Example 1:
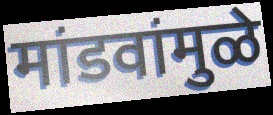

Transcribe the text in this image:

मांडवांमुळे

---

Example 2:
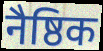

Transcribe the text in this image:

नैष्ठिक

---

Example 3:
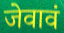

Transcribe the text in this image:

जेवावं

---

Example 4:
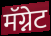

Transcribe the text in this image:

मॅग्नेट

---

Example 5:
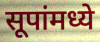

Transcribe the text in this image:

सूपांमध्ये